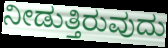
ನೀಡುತ್ತಿರುವುದು